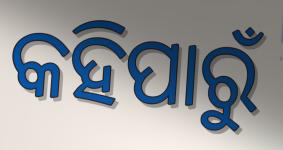
କହିପାରୁଁ